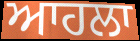
ਆਹਲਾ